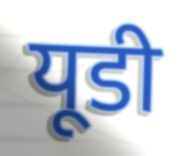
यूडी